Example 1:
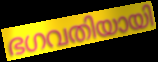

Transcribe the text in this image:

ഭഗവതിയായി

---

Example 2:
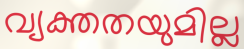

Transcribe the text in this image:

വ്യക്തതയുമില്ല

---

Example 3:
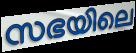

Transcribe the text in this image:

സഭയിലെ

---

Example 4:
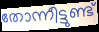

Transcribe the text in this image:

തോന്നീട്ടുണ്ട്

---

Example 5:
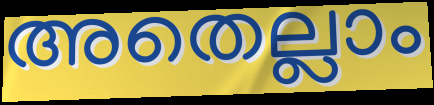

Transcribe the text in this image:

അതെല്ലാം